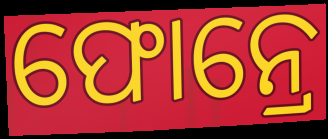
ଫୋନ୍ରେ